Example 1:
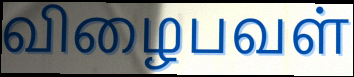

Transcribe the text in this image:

விழைபவள்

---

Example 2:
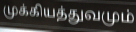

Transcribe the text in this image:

முக்கியத்துவமும்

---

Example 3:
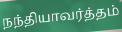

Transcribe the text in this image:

நந்தியாவர்த்தம்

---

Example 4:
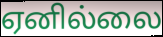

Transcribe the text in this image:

ஏனில்லை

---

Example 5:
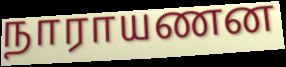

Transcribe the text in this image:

நாராயணன